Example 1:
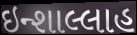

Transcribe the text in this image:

ઇન્શાલ્લાહ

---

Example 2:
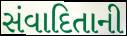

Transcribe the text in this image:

સંવાદિતાની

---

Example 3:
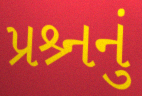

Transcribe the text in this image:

પ્રશ્ર્નનું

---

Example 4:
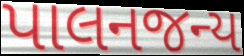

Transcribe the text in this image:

પાલનજન્ય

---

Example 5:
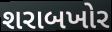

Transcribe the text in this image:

શરાબખોર